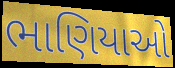
ભાણિયાઓ